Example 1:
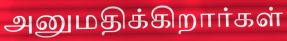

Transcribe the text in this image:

அனுமதிக்கிறார்கள்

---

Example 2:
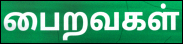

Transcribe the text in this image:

பைறவகள்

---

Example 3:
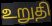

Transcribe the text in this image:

உறுதி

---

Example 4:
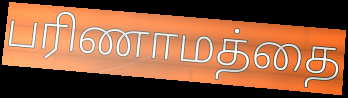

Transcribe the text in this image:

பரிணாமத்தை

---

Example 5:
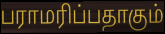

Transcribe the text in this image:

பராமரிப்பதாகும்